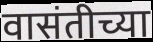
वासंतीच्या